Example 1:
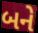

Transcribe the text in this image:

બને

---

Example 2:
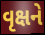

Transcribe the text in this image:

વૃક્ષને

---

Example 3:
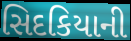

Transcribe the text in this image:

સિદકિયાની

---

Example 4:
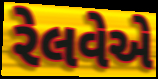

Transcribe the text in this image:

રેલવેએ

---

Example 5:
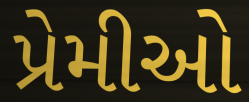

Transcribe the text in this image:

પ્રેમીઓ